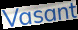
Vasant